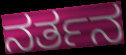
ನರ್ತನ